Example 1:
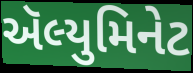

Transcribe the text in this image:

ઍલ્યુમિનેટ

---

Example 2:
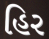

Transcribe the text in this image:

હિર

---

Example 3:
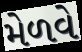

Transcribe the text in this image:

મેળવે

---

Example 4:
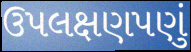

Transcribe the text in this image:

ઉપલક્ષણપણું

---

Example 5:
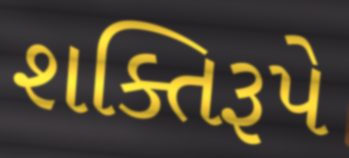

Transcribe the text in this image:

શક્તિરૂપે